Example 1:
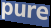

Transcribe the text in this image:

pure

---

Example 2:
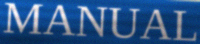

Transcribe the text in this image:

MANUAL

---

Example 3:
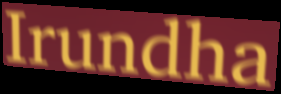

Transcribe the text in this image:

Irundha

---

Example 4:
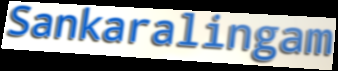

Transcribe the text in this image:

Sankaralingam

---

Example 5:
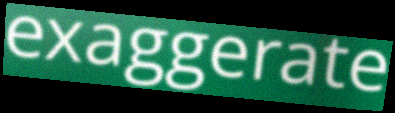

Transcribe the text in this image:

exaggerate